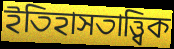
ইতিহাসতাত্ত্বিক